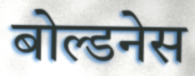
बोल्डनेस